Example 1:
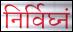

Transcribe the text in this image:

निर्विघ्नं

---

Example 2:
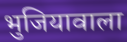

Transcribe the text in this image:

भुजियावाला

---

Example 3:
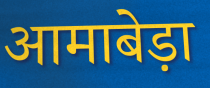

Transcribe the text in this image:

आमाबेड़ा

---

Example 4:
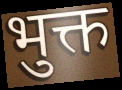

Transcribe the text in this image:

भुक्त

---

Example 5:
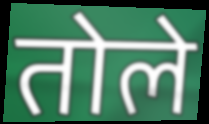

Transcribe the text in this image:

तोले